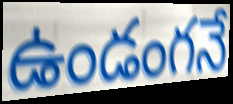
ఉండంగనే